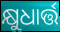
କ୍ଷୁଧାର୍ତ୍ତ